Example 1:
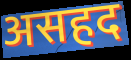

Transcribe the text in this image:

असहद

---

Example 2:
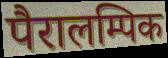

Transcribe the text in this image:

पैरालम्पिक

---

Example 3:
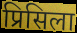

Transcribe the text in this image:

प्रिसिला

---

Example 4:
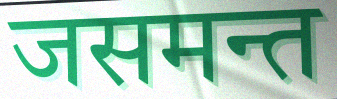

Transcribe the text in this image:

जसमन्त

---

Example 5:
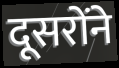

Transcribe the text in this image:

दूसरोंने